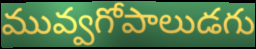
మువ్వగోపాలుడగు